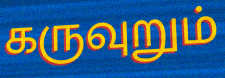
கருவுறும்